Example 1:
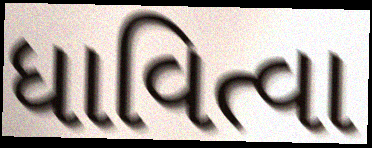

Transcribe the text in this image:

ધાવિત્વા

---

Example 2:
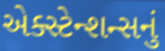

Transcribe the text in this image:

એક્સ્ટેન્શન્સનું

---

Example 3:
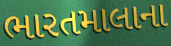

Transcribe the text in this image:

ભારતમાલાના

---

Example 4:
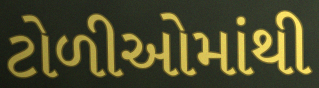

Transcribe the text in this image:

ટોળીઓમાંથી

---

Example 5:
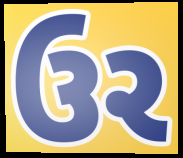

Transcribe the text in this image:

ઉર